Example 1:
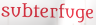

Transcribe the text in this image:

subterfuge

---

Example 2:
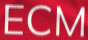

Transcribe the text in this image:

ECM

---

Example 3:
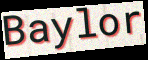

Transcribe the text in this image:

Baylor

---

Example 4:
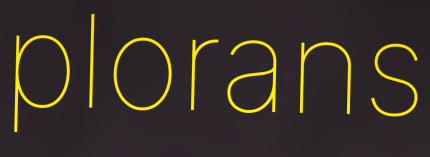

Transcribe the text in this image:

plorans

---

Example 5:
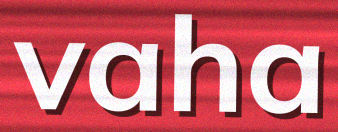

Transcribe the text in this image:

vaha